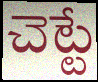
చెట్టే